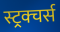
स्ट्रक्चर्स